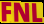
FNL